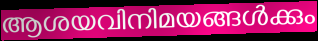
ആശയവിനിമയങ്ങൾക്കും